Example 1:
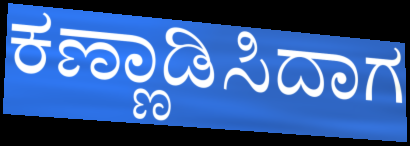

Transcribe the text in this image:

ಕಣ್ಣಾಡಿಸಿದಾಗ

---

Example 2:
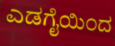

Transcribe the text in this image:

ಎಡಗೈಯಿಂದ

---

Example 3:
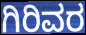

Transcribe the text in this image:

ಗಿರಿವರ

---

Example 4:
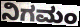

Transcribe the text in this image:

ನಿಗಮಂ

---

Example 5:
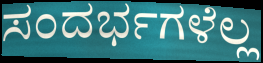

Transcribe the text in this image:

ಸಂದರ್ಭಗಳೆಲ್ಲ